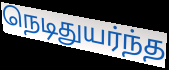
நெடிதுயர்ந்த